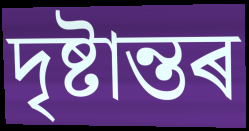
দৃষ্টান্তৰ